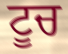
ਟੂਚ